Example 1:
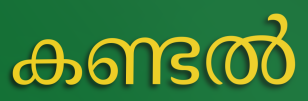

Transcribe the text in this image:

കണ്ടൽ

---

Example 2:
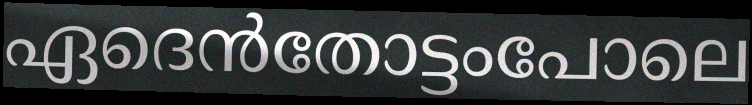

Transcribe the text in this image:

ഏദെൻതോട്ടംപോലെ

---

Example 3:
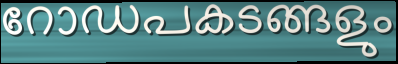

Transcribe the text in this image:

റോഡപകടങ്ങളും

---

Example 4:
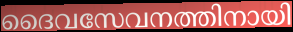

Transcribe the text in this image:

ദൈവസേവനത്തിനായി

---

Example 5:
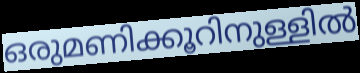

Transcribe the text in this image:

ഒരുമണിക്കൂറിനുള്ളിൽ